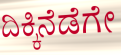
ದಿಕ್ಕಿನೆಡೆಗೇ